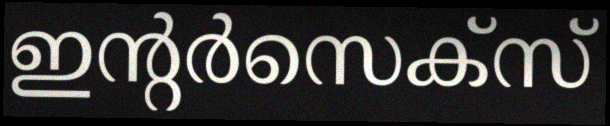
ഇന്റർസെക്സ്